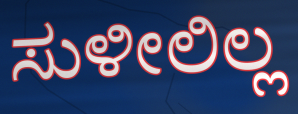
ಸುಳೀಲಿಲ್ಲ